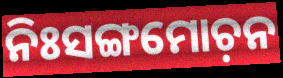
ନିଃସଙ୍ଗମୋଚ଼ନ